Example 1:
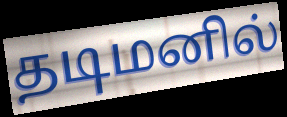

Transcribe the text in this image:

தடிமனில்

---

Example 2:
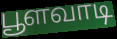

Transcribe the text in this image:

பூளவாடி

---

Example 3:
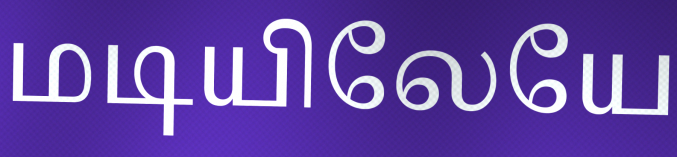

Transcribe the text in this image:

மடியிலேயே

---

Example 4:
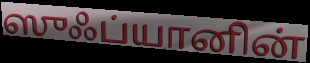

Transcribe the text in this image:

ஸுஃப்யானின்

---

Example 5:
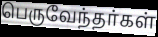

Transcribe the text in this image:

பெருவேந்தர்கள்